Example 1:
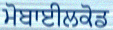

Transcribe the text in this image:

ਮੋਬਾਈਲਕੋਡ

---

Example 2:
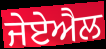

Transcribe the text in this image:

ਜੇਏਐਲ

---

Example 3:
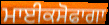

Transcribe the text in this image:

ਮਾਈਕਸੋਫਾਗਾ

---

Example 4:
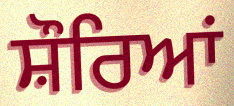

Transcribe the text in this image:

ਸ਼ੌਰਿਆਂ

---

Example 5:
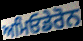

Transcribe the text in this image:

ਅਮਿਓਡੇਰੋਨ